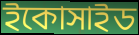
ইকোসাইড